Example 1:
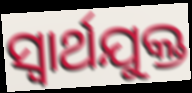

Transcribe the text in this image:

ସ୍ୱାର୍ଥଯୁକ୍ତ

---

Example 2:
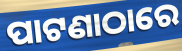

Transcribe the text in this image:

ପାଟଣାଠାରେ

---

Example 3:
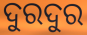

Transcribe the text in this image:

ଦୁରଦୁର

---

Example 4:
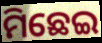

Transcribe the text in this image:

ମିଛେଇ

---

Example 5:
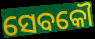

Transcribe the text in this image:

ସେବକୌ